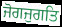
ਜੋਗਜੁਗਤਿ